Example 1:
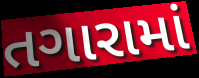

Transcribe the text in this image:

તગારામાં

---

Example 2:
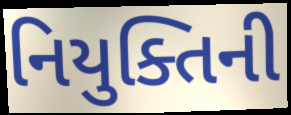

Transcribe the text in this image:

નિયુક્તિની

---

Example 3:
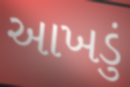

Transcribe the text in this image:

આખડું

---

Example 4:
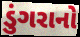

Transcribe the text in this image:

ડુંગરાનો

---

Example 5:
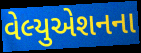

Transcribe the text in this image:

વેલ્યુએશનના